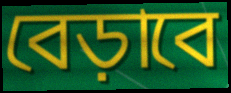
বেড়াবে